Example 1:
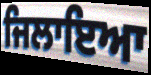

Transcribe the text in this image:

ਜਿਲਾਇਆ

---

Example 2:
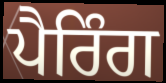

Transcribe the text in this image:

ਪੈਰਿੰਗ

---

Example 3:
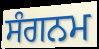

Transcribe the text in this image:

ਸੰਗਨਮ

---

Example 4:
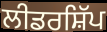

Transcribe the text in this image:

ਲੀਡਰਸ਼ਿੱਪ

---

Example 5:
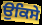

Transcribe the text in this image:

ਉਕਿਸੇ